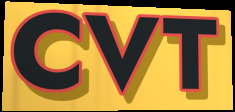
CVT